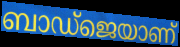
ബാഡ്ജെയാണ്